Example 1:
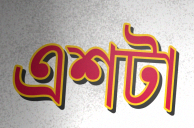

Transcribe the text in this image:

এশটা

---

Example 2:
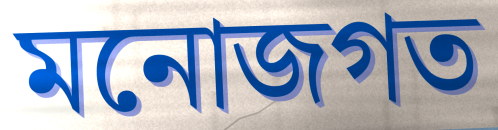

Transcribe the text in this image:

মনোজগত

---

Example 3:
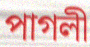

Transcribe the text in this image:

পাগলী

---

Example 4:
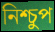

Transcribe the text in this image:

নিশ্চুপ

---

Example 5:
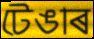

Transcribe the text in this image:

টেঙাৰ